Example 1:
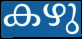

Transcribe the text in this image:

കഴു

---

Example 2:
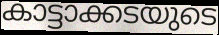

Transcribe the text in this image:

കാട്ടാക്കടയുടെ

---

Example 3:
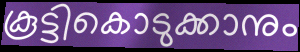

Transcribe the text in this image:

കൂട്ടികൊടുക്കാനും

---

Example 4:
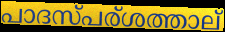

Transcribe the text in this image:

പാദസ്പര്ശത്താല്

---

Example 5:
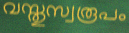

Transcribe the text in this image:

വസ്തുസ്വരൂപം